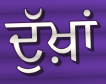
ਦੁੱਖ਼ਾਂ